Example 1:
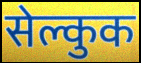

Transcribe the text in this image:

सेल्कुक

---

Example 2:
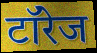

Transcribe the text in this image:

टॉरेज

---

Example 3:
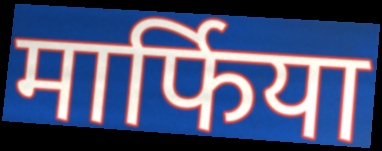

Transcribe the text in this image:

मार्फिया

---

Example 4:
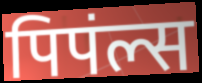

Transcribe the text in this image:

पिपंल्स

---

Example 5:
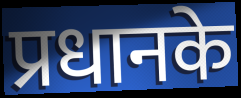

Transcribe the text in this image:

प्रधानके